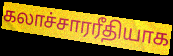
கலாச்சாரரீதியாக